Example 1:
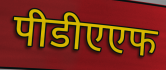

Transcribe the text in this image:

पीडीएएफ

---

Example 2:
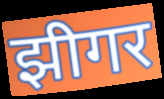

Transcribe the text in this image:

झीगर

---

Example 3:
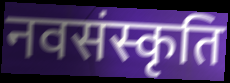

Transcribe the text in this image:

नवसंस्कृति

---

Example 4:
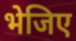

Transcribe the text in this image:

भेजिए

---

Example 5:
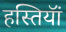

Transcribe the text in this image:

हस्तियॉं